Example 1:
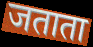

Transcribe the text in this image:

जताता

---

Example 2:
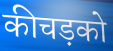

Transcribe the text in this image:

कीचड़को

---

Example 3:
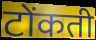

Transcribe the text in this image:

टोंकती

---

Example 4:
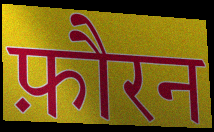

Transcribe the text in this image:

फ़ौरन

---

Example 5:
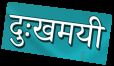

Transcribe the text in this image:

दुःखमयी